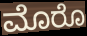
ಮೊರೊ